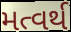
મત્વર્થ